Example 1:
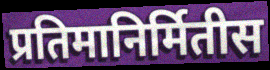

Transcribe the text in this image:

प्रतिमानिर्मितीस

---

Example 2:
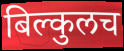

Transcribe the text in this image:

बिल्कुलच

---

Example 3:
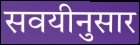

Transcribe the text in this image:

सवयीनुसार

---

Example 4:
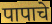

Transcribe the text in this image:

पापाचे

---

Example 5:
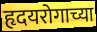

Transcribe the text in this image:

हृदयरोगाच्या